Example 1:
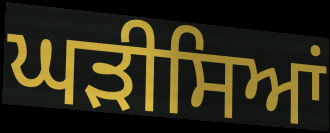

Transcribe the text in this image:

ਘੜੀਸਿਆਂ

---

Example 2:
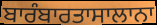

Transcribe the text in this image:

ਬਾਰੰਬਾਰਤਾਸਾਲਾਨਾ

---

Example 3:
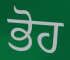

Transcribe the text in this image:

ਭੋਹ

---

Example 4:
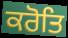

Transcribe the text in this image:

ਕਰੋਤਿ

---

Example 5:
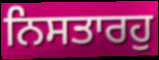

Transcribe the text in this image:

ਨਿਸਤਾਰਹੁ